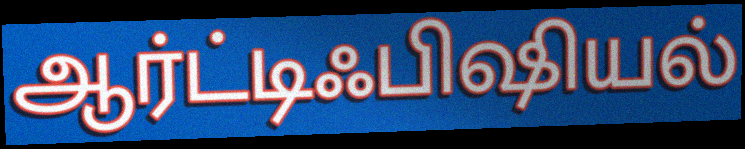
ஆர்ட்டிஃபிஷியல்